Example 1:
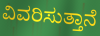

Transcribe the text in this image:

ವಿವರಿಸುತ್ತಾನೆ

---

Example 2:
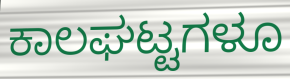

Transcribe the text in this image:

ಕಾಲಘಟ್ಟಗಳೂ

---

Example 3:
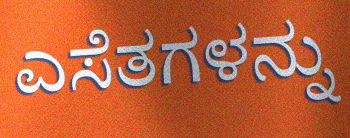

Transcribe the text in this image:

ಎಸೆತಗಳನ್ನು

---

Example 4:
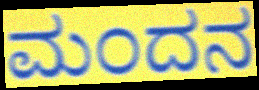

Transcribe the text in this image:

ಮಂದನ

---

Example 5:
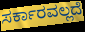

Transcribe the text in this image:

ಸರ್ಕಾರವಲ್ಲದೆ